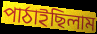
পাঠাইছিলাম